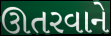
ઊતરવાને